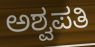
ಅಶ್ವಪತಿ